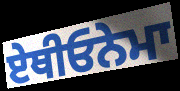
ਏਥੀਓਨੇਮਾ